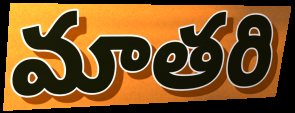
మాతరి